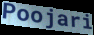
Poojari